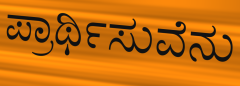
ಪ್ರಾರ್ಥಿಸುವೆನು